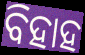
ବିହାହ